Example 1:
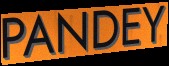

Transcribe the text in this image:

PANDEY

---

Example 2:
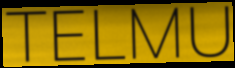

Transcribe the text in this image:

TELMU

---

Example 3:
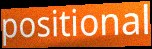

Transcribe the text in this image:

positional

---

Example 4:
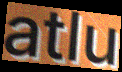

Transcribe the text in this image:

atlu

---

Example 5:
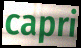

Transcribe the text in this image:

capri